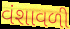
વંશાવળી